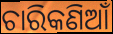
ଚାରିକଣିଆଁ